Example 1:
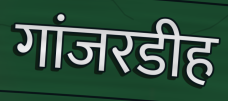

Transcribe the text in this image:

गांजरडीह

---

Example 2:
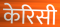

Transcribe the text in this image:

केरिसी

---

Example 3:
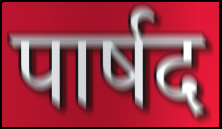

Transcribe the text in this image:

पार्षद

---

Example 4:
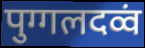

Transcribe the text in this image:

पुग्गलदव्वं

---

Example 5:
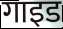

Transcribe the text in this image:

गाइड